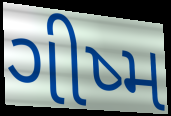
ગીષ્મ